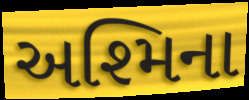
અશ્મિના